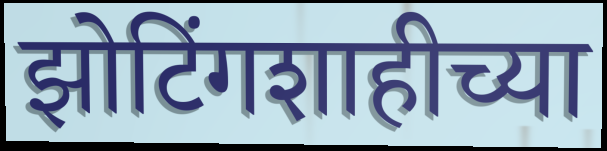
झोटिंगशाहीच्या